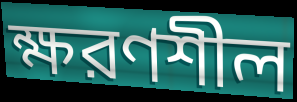
ক্ষরণশীল